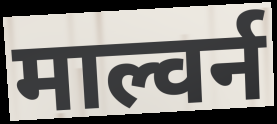
माल्वर्न